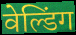
वेल्डिंग